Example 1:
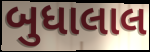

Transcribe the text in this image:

બુધાલાલ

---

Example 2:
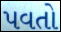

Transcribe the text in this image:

પવતો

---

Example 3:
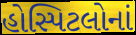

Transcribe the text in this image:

હોસ્પિટલોનાં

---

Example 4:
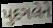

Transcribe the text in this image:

પુદગલેને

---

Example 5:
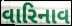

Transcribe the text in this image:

વારિનાવ